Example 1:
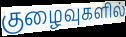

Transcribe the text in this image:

குழைவுகளில்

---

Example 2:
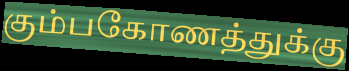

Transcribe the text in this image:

கும்பகோணத்துக்கு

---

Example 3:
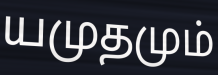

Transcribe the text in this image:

யமுதமும்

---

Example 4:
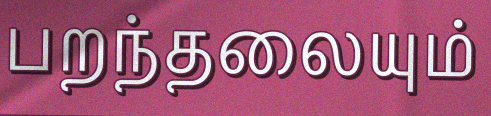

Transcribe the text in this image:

பறந்தலையும்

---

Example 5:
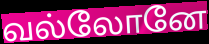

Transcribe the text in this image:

வல்லோனே